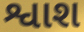
શ્વાશ